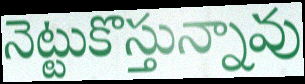
నెట్టుకొస్తున్నావు